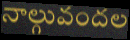
నాల్గువందల